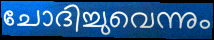
ചോദിച്ചുവെന്നും